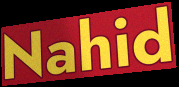
Nahid